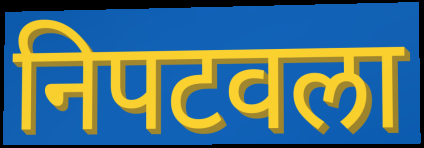
निपटवला